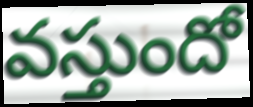
వస్తుందో